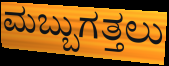
ಮಬ್ಬುಗತ್ತಲು